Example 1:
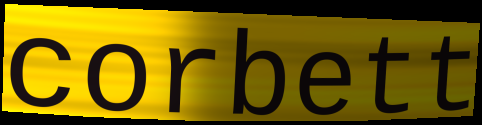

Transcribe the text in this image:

corbett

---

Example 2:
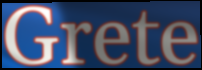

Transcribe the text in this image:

Grete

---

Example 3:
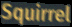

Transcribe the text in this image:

Squirrel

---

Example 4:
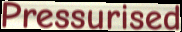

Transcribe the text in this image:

Pressurised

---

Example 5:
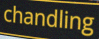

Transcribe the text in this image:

chandling